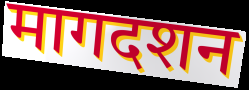
मागदशन